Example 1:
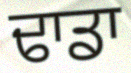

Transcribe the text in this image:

ਢਾਡਾ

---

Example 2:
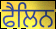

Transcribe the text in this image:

ਫੈਲਿਨ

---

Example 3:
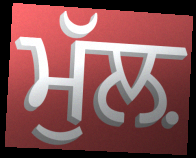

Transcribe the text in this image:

ਮੁੱਲ਼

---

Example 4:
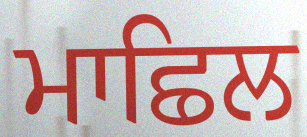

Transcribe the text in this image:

ਮਾਛਿਲ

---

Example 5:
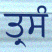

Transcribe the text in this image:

ਤ੍ਰਸੰ